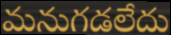
మనుగడలేదు